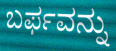
ಬರ್ಫವನ್ನು